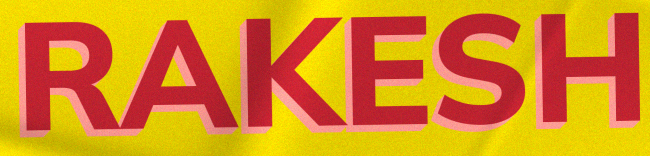
RAKESH